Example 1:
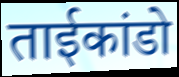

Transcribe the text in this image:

ताईकांडो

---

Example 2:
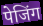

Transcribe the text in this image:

पेजिंग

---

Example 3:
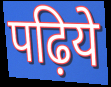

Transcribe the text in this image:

पढ़िये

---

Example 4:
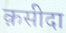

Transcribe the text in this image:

क़सीदा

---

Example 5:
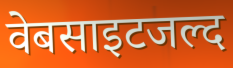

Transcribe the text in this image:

वेबसाइटजल्द